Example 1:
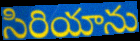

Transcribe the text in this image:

సిరియాను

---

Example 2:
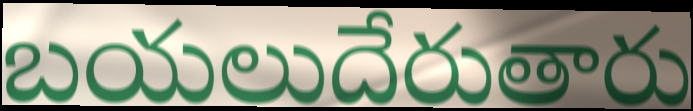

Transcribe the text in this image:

బయలుదేరుతారు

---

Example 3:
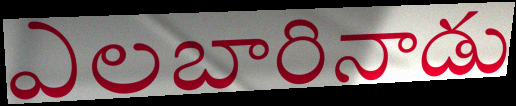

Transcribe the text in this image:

ఎలబారినాడు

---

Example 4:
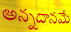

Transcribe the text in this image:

అన్నదానమే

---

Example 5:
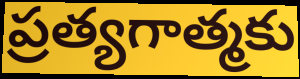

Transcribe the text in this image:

ప్రత్యగాత్మకు